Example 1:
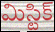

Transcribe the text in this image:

మిస్టిక్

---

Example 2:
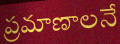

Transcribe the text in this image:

ప్రమాణాలనే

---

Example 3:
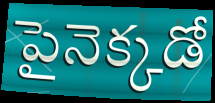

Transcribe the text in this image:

పైనెక్కడో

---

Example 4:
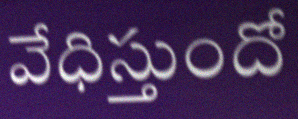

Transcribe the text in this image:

వేధిస్తుందో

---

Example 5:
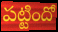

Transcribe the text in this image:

పట్టిందో